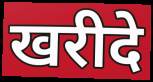
खरीदे